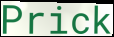
Prick